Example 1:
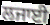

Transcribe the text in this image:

ਲਜਾਈ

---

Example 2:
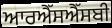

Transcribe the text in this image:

ਆਰਐੱਸਐੱਸਬੀ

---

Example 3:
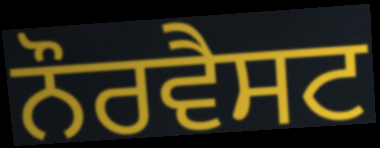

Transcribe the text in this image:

ਨੌਰਵੈਸਟ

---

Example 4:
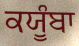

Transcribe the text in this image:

ਕਯੂੰਬਾ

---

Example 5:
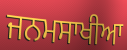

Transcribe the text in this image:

ਜਨਮਸਾਖੀਆ